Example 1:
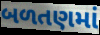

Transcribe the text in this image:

બળતણમાં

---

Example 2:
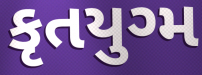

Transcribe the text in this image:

કૃતયુગ્મ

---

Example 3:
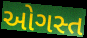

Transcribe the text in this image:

ઓગસ્ત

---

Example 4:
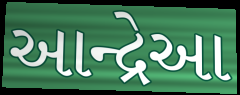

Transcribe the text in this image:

આન્દ્રેઆ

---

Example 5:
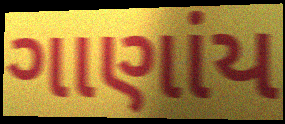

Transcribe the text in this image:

ગાણાંય